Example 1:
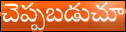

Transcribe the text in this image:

చెప్పబడుచూ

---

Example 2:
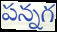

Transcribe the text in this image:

పన్నగ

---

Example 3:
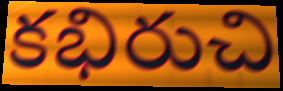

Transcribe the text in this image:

కభిరుచి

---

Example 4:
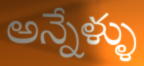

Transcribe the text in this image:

అన్నేళ్ళు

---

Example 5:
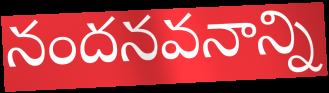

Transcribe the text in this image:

నందనవనాన్ని